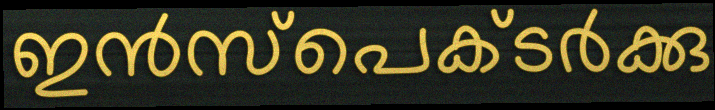
ഇൻസ്പെക്ടർക്കു